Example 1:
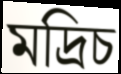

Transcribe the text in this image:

মদ্রিচ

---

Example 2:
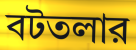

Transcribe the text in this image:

বটতলার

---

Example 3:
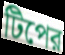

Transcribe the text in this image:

টিপের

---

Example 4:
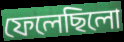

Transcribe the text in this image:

ফেলেছিলো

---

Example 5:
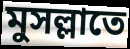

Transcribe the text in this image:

মুসল্লাতে